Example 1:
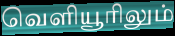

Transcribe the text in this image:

வெளியூரிலும்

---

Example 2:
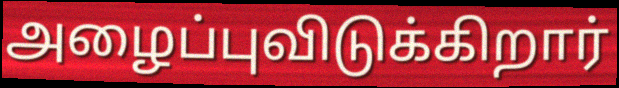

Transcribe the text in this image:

அழைப்புவிடுக்கிறார்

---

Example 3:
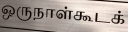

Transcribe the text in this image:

ஒருநாள்கூடக்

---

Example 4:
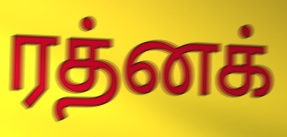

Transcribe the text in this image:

ரத்னக்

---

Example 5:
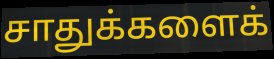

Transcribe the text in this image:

சாதுக்களைக்